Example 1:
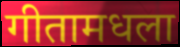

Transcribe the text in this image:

गीतामधला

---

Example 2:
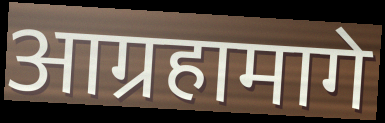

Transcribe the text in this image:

आग्रहामागे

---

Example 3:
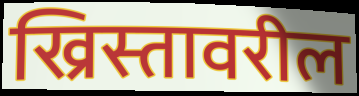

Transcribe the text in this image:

ख्रिस्तावरील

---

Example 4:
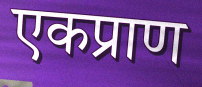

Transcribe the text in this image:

एकप्राण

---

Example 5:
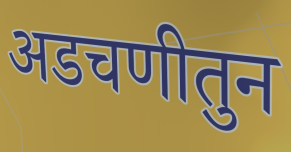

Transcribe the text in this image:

अडचणीतुन